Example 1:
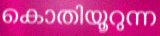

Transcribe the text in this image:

കൊതിയൂറുന്ന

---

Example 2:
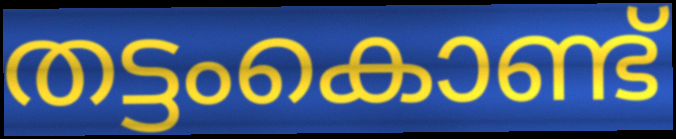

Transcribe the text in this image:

തട്ടംകൊണ്ട്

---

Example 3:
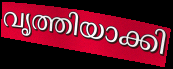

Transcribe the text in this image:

വൃത്തിയാക്കി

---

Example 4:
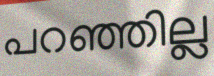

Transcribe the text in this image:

പറഞ്ഞില്ല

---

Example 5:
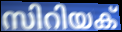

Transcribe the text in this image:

സിറിയക്